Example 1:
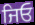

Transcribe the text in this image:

ਜਿਓ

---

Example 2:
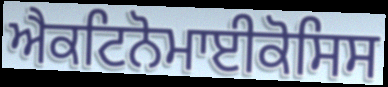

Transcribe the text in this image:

ਐਕਟਿਨੋਮਾਈਕੋਸਿਸ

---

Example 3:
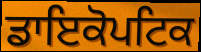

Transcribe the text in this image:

ਡਾਇਕੋਪਟਿਕ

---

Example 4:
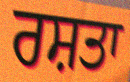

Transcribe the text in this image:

ਰਸ਼ਤਾ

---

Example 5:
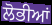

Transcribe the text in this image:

ਲੋਭੀਆਂ